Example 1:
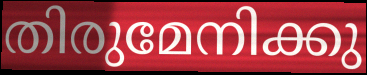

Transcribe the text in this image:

തിരുമേനിക്കു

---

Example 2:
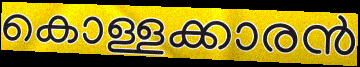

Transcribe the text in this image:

കൊള്ളക്കാരൻ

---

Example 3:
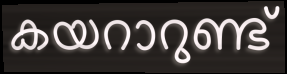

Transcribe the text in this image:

കയറാറുണ്ട്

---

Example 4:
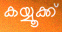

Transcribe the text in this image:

കയ്യൂക്ക്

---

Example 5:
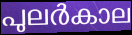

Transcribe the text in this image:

പുലർകാല